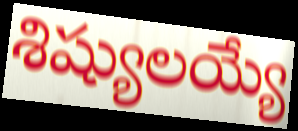
శిష్యులయ్యే